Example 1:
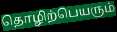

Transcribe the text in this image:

தொழிற்பெயரும்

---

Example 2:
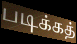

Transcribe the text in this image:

படிக்கத்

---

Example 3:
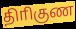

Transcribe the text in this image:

திரிகுண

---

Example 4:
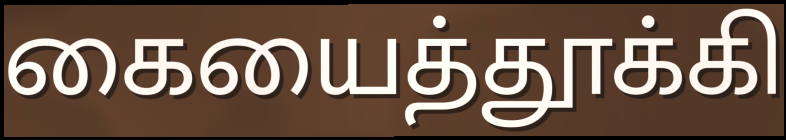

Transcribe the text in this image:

கையைத்தூக்கி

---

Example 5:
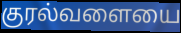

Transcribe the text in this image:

குரல்வளையை